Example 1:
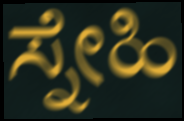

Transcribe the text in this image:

ಸ್ನೇಹಿ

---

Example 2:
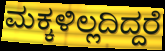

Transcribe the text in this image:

ಮಕ್ಕಳಿಲ್ಲದಿದ್ದರೆ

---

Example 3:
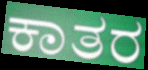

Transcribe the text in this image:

ಕಾತರ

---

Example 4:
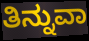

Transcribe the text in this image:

ತಿನ್ನುವಾ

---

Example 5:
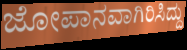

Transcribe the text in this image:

ಜೋಪಾನವಾಗಿರಿಸಿದ್ದು